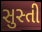
સુસ્તી